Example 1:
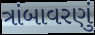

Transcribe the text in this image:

ત્રાંબાવરણું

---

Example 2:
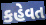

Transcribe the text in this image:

કહેવત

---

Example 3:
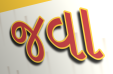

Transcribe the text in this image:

જવા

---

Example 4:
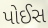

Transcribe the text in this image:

પોઈસ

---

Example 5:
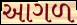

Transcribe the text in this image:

આગળ